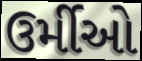
ઉર્મીઓ